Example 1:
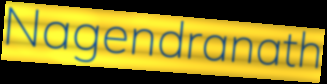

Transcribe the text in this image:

Nagendranath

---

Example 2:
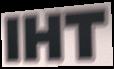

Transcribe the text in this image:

IHT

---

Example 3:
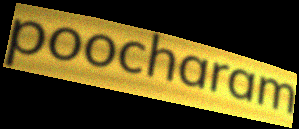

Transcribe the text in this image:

poocharam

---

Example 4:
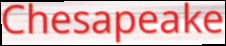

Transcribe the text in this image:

Chesapeake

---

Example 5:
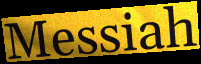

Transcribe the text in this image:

Messiah